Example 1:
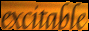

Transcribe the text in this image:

excitable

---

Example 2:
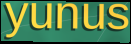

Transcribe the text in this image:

yunus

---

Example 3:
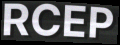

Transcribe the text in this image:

RCEP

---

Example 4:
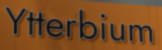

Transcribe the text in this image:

Ytterbium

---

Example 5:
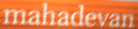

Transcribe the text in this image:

mahadevan